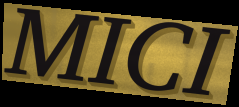
MICI